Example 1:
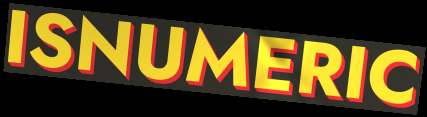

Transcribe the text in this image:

ISNUMERIC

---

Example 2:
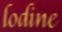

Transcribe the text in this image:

lodine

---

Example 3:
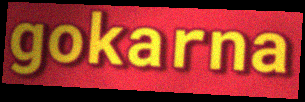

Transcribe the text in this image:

gokarna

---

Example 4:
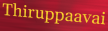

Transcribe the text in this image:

Thiruppaavai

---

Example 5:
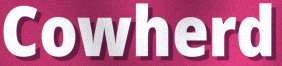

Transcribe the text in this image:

Cowherd